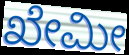
ಖೇಮೀ